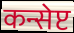
कन्सेप्ट